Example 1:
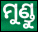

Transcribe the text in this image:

ମୁଣ୍ଡୁ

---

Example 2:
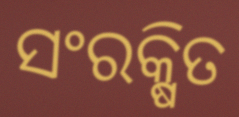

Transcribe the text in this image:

ସଂରକ୍ଷିତ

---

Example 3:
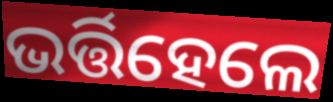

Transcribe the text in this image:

ଭର୍ତ୍ତିହେଲେ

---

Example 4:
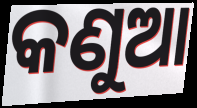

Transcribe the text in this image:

କଣୁଆ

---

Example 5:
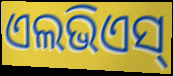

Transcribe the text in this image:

ଏଲଭିଏସ୍